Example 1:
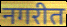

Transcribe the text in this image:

नगरीत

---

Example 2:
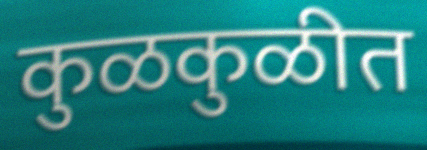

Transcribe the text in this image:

कुळकुळीत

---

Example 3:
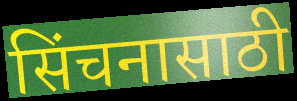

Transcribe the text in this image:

सिंचनासाठी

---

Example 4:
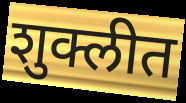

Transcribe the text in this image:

शुक्लीत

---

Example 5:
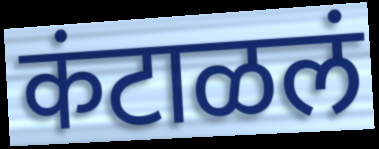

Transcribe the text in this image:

कंटाळलं